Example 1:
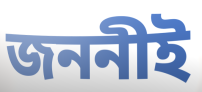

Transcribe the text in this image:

জননীই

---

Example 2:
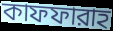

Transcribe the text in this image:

কাফফারাহ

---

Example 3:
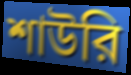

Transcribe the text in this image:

শাউরি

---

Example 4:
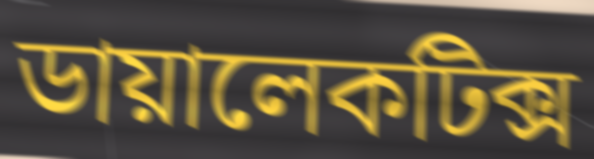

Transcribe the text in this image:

ডায়ালেকটিক্স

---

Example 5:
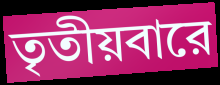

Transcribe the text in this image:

তৃতীয়বারে